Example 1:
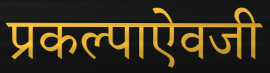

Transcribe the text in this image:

प्रकल्पाऐवजी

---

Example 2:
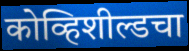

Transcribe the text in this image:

कोव्हिशील्डचा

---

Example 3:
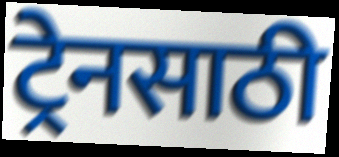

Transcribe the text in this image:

ट्रेनसाठी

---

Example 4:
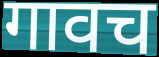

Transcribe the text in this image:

गावच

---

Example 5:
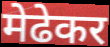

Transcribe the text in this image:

मेढेकर